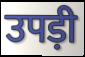
उपड़ी